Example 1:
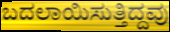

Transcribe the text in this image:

ಬದಲಾಯಿಸುತ್ತಿದ್ದವು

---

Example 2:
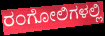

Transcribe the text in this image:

ರಂಗೋಲಿಗಳಲ್ಲಿ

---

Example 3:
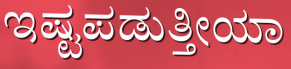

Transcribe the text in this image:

ಇಷ್ಟಪಡುತ್ತೀಯಾ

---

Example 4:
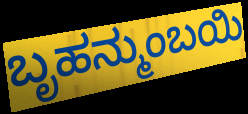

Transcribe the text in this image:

ಬೃಹನ್ಮುಂಬಯಿ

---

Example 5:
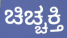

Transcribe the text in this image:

ಚಿಚ್ಚಕ್ತಿ